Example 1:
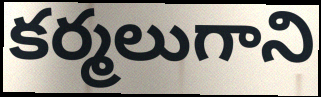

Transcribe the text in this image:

కర్మలుగాని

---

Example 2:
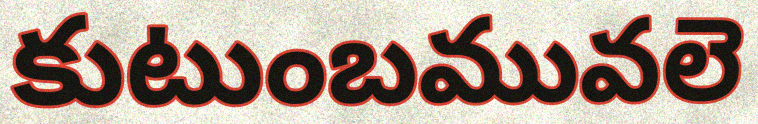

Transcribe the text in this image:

కుటుంబమువలె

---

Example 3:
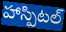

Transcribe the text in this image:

హాస్పిటల్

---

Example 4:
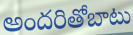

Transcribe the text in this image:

అందరితోబాటు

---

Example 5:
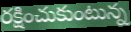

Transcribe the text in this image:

రక్షించుకుంటున్న